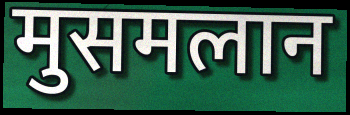
मुसमलान